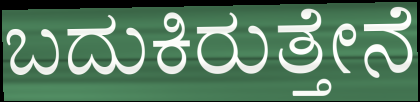
ಬದುಕಿರುತ್ತೇನೆ